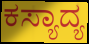
ಕಸ್ಯಾದ್ಯ